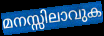
മനസ്സിലാവുക